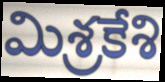
మిశ్రకేశి